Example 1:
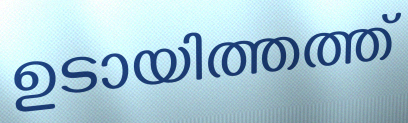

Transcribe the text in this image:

ഉടായിത്തത്ത്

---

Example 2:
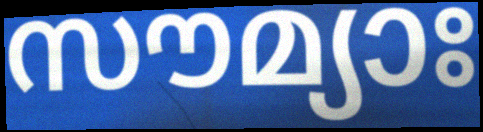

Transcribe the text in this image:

സൗമ്യാഃ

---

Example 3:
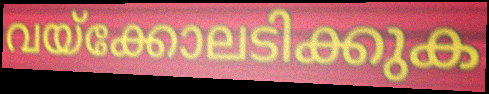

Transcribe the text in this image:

വയ്ക്കോലടിക്കുക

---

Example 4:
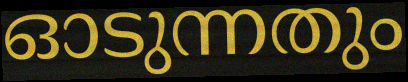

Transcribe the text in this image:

ഓടുന്നതും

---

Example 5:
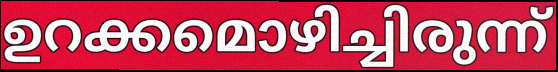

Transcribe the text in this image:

ഉറക്കമൊഴിച്ചിരുന്ന്